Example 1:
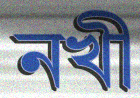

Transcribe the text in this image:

নখী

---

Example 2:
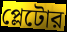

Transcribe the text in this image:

প্লেটোর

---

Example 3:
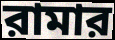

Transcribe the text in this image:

রামার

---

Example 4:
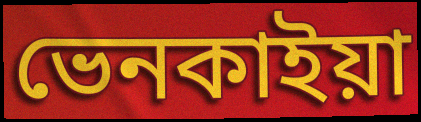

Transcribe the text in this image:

ভেনকাইয়া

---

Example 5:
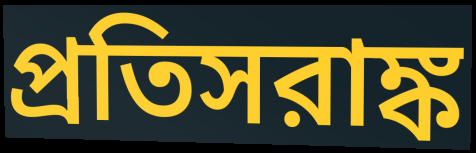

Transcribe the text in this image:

প্রতিসরাঙ্ক